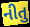
નીતુ